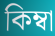
কিম্বা